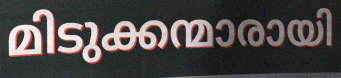
മിടുക്കന്മാരായി